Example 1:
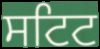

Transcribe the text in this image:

ਸਟਿਟ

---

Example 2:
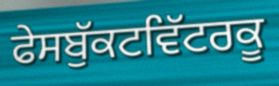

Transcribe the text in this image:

ਫੇਸਬੁੱਕਟਵਿੱਟਰਕੂ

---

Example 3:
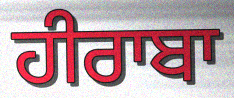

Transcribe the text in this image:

ਹੀਰਾਬਾ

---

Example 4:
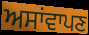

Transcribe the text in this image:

ਅਸਾਂਵਾਪਣ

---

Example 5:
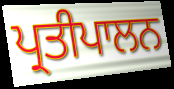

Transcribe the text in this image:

ਪ੍ਰਤੀਪਾਲਨ